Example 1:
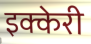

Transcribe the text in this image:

इक्केरी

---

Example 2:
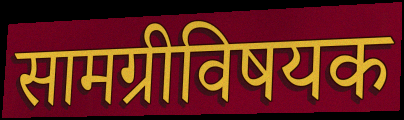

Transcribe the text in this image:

सामग्रीविषयक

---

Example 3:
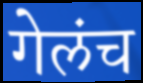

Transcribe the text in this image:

गेलंच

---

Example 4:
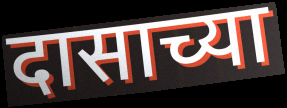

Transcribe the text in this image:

दासाच्या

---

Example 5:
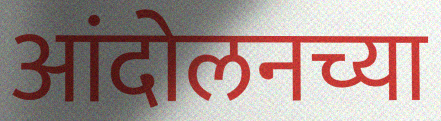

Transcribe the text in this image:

आंदोलनच्या